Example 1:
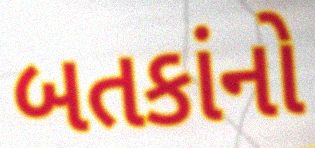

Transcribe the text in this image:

બતકાંનો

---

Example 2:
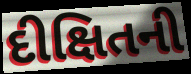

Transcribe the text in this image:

દીક્ષિતની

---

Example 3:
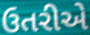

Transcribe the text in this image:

ઉતરીએ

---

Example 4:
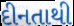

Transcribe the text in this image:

દીનતાથી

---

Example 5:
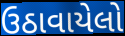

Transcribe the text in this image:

ઉઠાવાયેલો